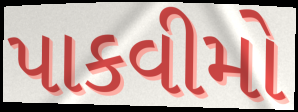
પાકવીમો